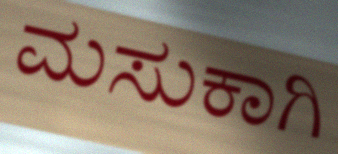
ಮಸುಕಾಗಿ